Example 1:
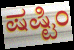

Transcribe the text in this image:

ಷಷ್ಟಿಂ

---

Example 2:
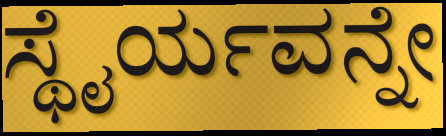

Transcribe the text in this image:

ಸ್ಥೈರ್ಯವನ್ನೇ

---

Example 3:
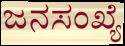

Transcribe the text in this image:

ಜನಸಂಖ್ಯೆ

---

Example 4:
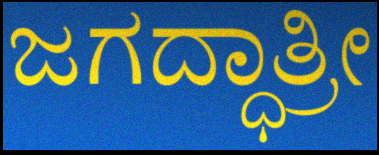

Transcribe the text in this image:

ಜಗದ್ಧಾತ್ರೀ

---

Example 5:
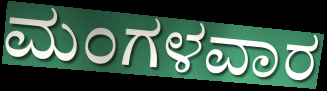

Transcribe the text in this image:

ಮಂಗಳವಾರ